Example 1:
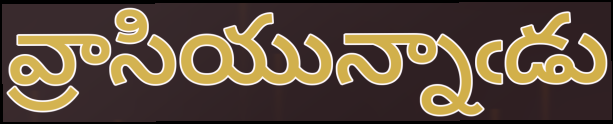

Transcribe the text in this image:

వ్రాసియున్నాఁడు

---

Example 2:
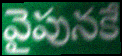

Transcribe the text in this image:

వైపునకే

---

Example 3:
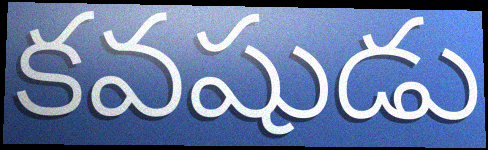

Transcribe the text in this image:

కవషుడు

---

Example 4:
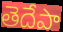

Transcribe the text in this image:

తెదేపా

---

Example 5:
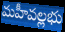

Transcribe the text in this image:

మహీవల్లభు